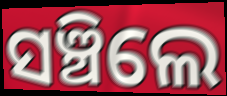
ସଞ୍ଚିଲେ